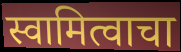
स्वामित्वाचा